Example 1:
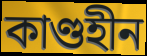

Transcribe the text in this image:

কাণ্ডহীন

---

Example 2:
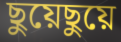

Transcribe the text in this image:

ছুয়েছুয়ে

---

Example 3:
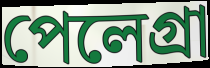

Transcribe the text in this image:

পেলেগ্রা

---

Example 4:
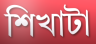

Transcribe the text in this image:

শিখাটা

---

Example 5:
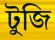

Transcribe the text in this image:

টুজি